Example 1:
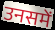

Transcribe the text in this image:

उनसमें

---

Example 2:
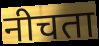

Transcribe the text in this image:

नीचता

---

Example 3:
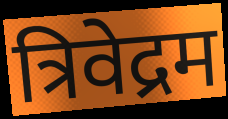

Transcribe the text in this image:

त्रिवेद्रम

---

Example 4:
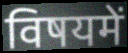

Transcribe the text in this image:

विषयमें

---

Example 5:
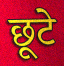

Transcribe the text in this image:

छूटे